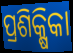
ପ୍ରଶିକ୍ଷିକା